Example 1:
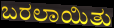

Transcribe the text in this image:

ಬರಲಾಯಿತು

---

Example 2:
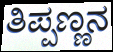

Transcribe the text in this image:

ತಿಪ್ಪಣ್ಣನ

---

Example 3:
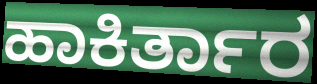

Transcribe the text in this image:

ಹಾಕಿರ್ತಾರ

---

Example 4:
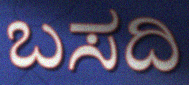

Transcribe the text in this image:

ಬಸದಿ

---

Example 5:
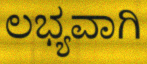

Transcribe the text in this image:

ಲಭ್ಯವಾಗಿ